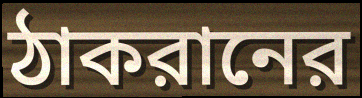
ঠাকরানের